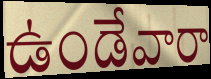
ఉండేవారా